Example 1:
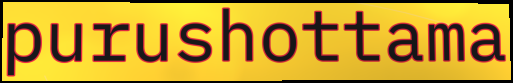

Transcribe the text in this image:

purushottama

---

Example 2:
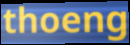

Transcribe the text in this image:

thoeng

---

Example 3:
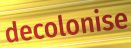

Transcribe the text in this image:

decolonise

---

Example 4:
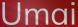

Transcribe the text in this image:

Umai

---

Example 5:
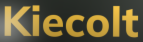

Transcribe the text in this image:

Kiecolt